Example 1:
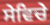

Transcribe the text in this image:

ਸੇਵਿਚੇ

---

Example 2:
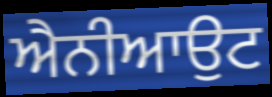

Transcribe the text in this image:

ਐਨੀਆਉਟ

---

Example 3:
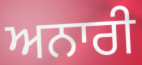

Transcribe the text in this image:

ਅਨਾਰੀ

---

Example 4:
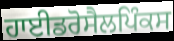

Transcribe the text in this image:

ਹਾਈਡਰੋਸੈਲਪਿੰਕਸ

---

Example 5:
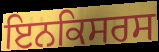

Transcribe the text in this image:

ਇਨਕਿਸਰਸ